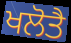
ਖਲੋਤੈ